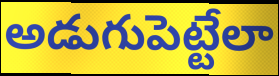
అడుగుపెట్టేలా